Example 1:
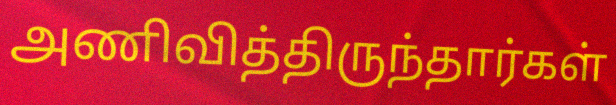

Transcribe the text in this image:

அணிவித்திருந்தார்கள்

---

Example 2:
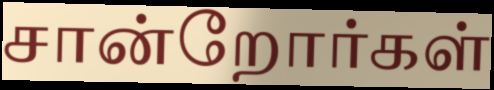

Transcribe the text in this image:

சான்றோர்கள்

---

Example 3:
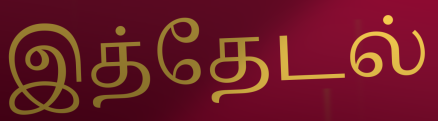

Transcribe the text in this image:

இத்தேடல்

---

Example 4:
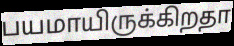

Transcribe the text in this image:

பயமாயிருக்கிறதா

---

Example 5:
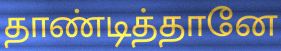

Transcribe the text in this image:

தாண்டித்தானே